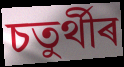
চতুৰ্থীৰ